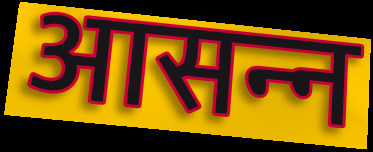
आसन्न